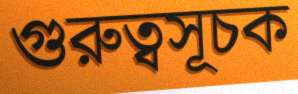
গুরুত্বসূচক